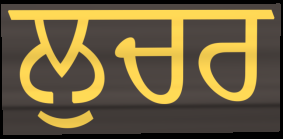
ਲੁਚਰ